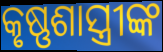
କୃଷ୍ଣଶାସ୍ତ୍ରୀଙ୍କ